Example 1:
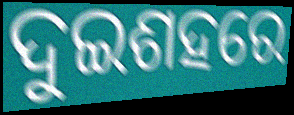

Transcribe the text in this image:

ଦୁଇଶହରେ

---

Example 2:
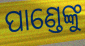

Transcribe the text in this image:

ପାଣ୍ଡେଙ୍କୁ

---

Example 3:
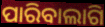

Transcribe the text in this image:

ପାରିବାଲାଗି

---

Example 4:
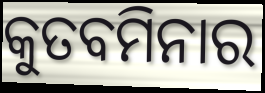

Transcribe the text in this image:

କୁତବମିନାର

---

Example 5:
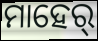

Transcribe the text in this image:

ମାହେର୍